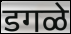
डगळे